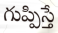
గుప్పిస్తే